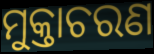
ମୁକ୍ତାଚରଣ